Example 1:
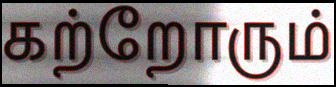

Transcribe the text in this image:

கற்றோரும்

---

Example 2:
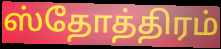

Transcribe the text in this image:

ஸ்தோத்திரம்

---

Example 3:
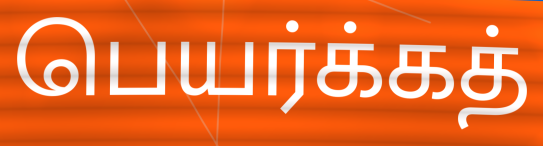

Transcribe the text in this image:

பெயர்க்கத்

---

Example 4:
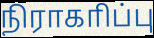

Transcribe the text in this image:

நிராகரிப்பு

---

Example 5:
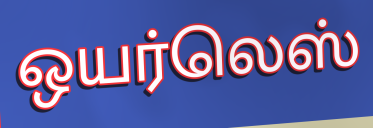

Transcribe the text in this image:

ஒயர்லெஸ்